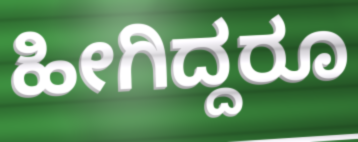
ಹೀಗಿದ್ದರೂ